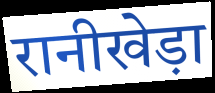
रानीखेड़ा